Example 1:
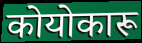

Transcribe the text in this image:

कोयोकारू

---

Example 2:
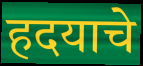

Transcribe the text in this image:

हदयाचे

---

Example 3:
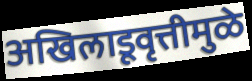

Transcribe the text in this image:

अखिलाडूवृत्तीमुळे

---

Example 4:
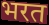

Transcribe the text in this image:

भरत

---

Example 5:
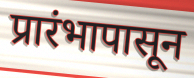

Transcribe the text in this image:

प्रारंभापासून